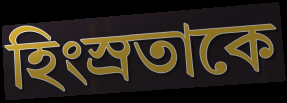
হিংস্রতাকে